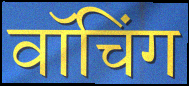
वॉचिंग